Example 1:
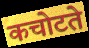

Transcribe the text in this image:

कचोटते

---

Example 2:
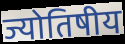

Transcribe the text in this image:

ज्योतिषीय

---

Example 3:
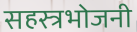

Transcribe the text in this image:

सहस्त्रभोजनी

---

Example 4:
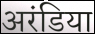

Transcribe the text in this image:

अरंडिया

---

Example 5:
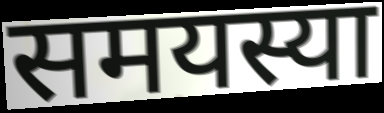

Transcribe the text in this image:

समयस्या